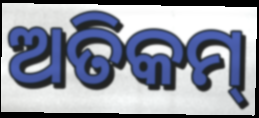
ଅତିକମ୍